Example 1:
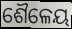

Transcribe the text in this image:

ଶୈଳେୟ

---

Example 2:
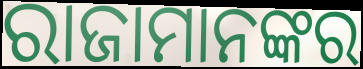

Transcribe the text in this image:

ରାଜାମାନଙ୍କର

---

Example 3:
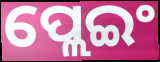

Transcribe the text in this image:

ପ୍ଲେଇଂ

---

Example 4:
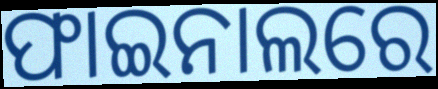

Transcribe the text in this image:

ଫାଇନାଲରେ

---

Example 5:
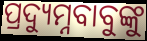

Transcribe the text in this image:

ପ୍ରଦ୍ୟୁମ୍ନବାବୁଙ୍କୁ